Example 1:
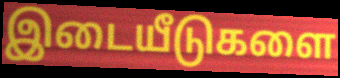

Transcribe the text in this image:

இடையீடுகளை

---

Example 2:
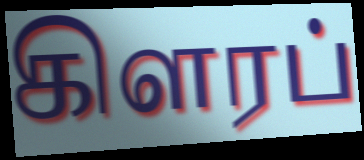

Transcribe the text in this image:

கிளரப்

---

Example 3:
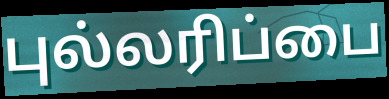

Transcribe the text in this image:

புல்லரிப்பை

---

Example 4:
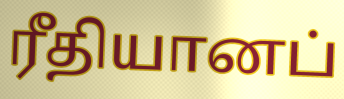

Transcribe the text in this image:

ரீதியானப்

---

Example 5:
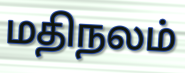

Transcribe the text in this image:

மதிநலம்